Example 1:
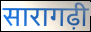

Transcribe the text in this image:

सारागढ़ी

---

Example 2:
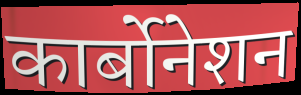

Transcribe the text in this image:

कार्बोनेशन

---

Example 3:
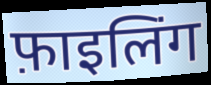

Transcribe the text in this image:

फ़ाइलिंग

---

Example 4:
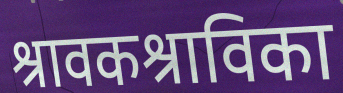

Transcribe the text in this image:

श्रावकश्राविका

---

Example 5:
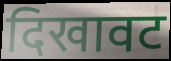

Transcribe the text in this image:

दिखावट